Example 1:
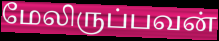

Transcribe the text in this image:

மேலிருப்பவன்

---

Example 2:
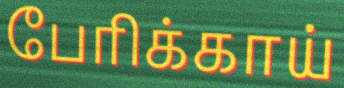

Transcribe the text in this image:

பேரிக்காய்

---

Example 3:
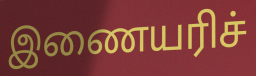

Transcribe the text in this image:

இணையரிச்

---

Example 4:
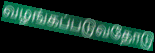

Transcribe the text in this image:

வழங்கப்படுவதோடு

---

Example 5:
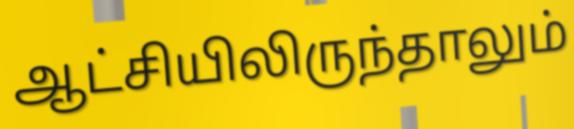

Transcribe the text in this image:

ஆட்சியிலிருந்தாலும்